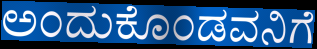
ಅಂದುಕೊಂಡವನಿಗೆ